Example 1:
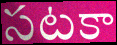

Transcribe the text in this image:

సటకా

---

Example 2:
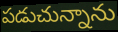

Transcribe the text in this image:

పడుచున్నాను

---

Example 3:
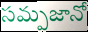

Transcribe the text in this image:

సమ్పజానో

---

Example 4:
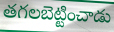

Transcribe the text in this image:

తగలబెట్టించాడు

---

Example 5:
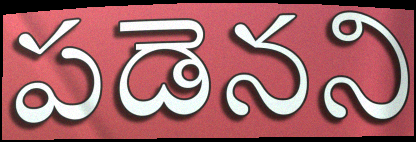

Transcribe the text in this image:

పడెనని